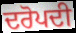
ਦਰੋਪਦੀ